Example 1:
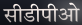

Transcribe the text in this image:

सीडीपीओ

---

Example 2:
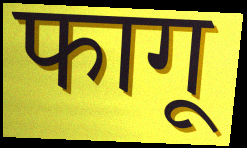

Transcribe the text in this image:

फागू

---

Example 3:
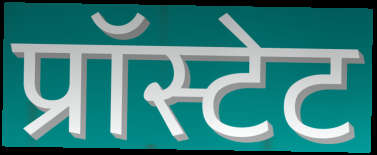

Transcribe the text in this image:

प्रॉस्टेट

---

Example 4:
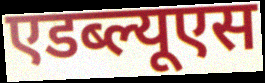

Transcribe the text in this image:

एडब्ल्यूएस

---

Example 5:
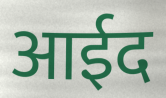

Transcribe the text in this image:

आईद